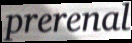
prerenal